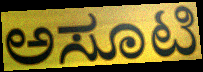
ಅಸೂಟಿ